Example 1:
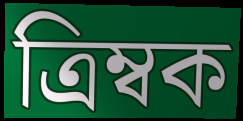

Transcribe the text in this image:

ত্রিম্বক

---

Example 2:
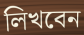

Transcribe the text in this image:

লিখবেন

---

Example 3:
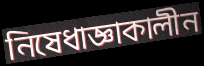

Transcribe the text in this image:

নিষেধাজ্ঞাকালীন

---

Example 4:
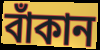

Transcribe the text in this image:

বাঁকান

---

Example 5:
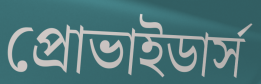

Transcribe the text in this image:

প্রোভাইডার্স